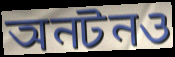
অনটনও